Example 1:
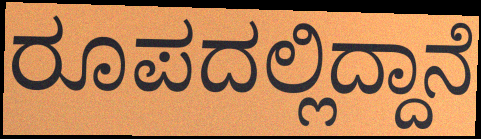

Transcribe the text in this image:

ರೂಪದಲ್ಲಿದ್ದಾನೆ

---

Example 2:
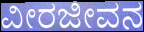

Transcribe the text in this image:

ವೀರಜೀವನ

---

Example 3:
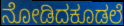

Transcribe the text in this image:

ನೋಡಿದಕೂಡಲೆ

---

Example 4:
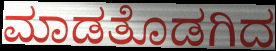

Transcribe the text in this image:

ಮಾಡತೊಡಗಿದ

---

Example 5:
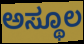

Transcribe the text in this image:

ಅಸ್ಥೂಲ